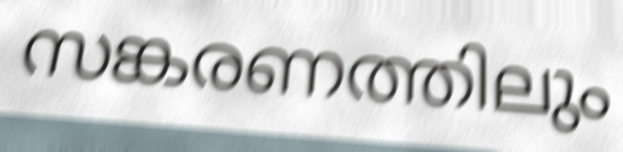
സങ്കരണത്തിലും